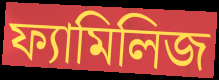
ফ্যামিলিজ